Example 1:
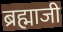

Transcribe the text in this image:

ब्रह्माजी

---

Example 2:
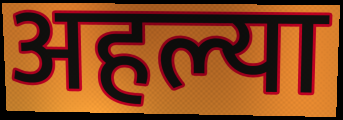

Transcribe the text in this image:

अहल्या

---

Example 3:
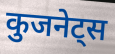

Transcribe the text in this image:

कुजनेट्स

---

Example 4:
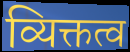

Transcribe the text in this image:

व्यिक्तत्व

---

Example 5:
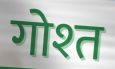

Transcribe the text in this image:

गोश्‍त